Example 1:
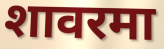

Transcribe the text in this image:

शावरमा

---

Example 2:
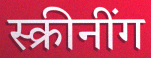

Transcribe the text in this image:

स्क्रीनींग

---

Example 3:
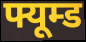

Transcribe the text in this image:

फ्यूम्ड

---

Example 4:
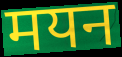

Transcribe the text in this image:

मयन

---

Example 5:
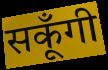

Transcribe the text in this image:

सकूँगी